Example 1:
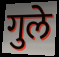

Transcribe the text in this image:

गुले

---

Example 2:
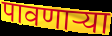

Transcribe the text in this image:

पावणाऱ्या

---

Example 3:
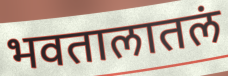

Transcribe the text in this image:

भवतालातलं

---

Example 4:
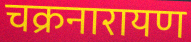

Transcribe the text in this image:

चक्रनारायण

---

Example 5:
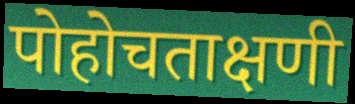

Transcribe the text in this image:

पोहोचताक्षणी